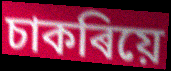
চাকৰিয়ে